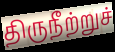
திருநீற்றுச்